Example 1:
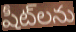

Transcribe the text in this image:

షీట్‌లను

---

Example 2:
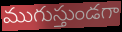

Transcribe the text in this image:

ముగుస్తుండగా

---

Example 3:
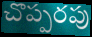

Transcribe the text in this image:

చొప్పరపు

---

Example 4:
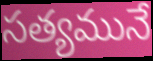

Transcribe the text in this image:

సత్యమునే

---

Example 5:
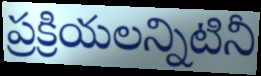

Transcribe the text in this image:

ప్రక్రియలన్నిటినీ